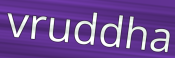
vruddha